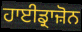
ਹਾਈਡ੍ਰਾਜ਼ੋਨ